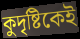
কুদৃষ্টিকেই